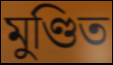
মুণ্ডিত